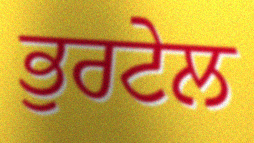
ਭੁਰਟੇਲ